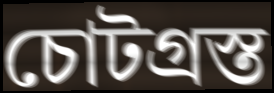
চোটগ্রস্ত